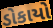
ડોકાયો